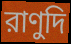
রাণুদি